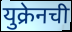
युक्रेनची